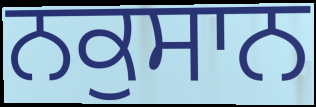
ਨਕੁਸਾਨ